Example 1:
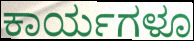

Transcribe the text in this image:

ಕಾರ್ಯಗಳೂ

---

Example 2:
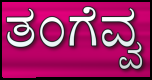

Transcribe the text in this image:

ತಂಗೆವ್ವ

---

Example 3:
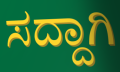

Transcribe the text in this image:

ಸದ್ದಾಗಿ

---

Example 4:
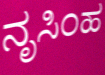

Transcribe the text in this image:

ನೃಸಿಂಹ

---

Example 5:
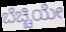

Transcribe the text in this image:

ಬೆಚ್ಚಿಯೇ